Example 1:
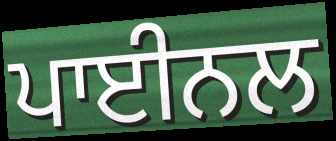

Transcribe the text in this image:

ਪਾਈਨਲ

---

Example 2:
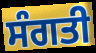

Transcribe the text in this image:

ਸੰਗਤੀ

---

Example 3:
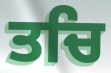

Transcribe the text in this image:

ਤਚਿ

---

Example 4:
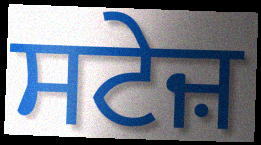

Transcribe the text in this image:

ਸਟੇਜ਼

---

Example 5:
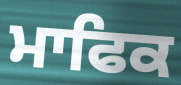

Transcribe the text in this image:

ਮਾਫਿਕ